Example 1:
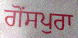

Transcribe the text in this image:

ਗੋਂਸਪੁਰਾ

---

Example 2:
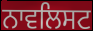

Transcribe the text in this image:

ਨਾਵਲਿਸਟ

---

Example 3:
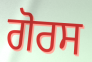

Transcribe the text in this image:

ਗੋਰਸ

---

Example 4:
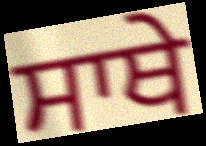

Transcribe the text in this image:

ਸਾਥੇ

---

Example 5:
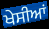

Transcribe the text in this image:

ਖੇਸੀਆਂ